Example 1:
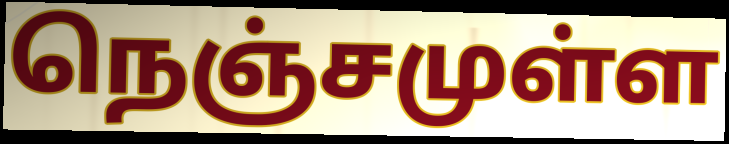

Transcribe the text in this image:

நெஞ்சமுள்ள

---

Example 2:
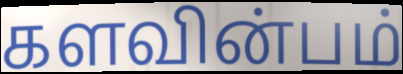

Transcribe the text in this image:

களவின்பம்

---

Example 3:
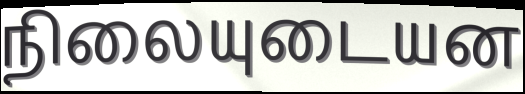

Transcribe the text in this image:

நிலையுடையன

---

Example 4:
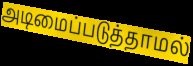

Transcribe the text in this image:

அடிமைப்படுத்தாமல்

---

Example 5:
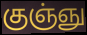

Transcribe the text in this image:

குஞ்ஞு